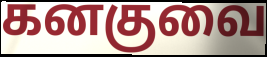
கனகுவை